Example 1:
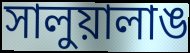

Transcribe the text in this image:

সালুয়ালাঙ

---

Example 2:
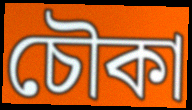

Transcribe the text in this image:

চৌকা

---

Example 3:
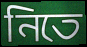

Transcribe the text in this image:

নিতে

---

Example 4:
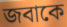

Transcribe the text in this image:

জবাকে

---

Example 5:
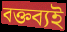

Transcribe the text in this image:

বক্তব্যই